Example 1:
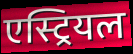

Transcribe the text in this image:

एस्ट्रियल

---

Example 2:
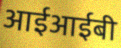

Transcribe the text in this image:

आईआईबी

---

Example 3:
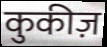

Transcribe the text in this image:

कुकीज़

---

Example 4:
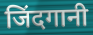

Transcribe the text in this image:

जिंदगानी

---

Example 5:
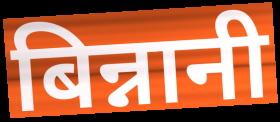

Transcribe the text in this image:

बिन्नानी